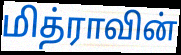
மித்ராவின்